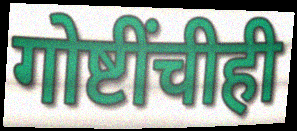
गोष्टींचीही